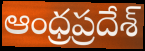
ఆంధ్రప్రదేశ్